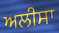
ਅਲੀਸਾ